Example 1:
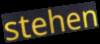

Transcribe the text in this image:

stehen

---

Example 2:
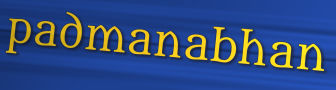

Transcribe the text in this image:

padmanabhan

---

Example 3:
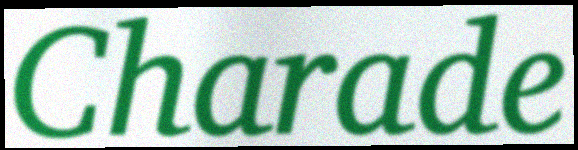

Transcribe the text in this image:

Charade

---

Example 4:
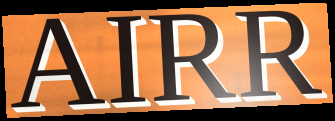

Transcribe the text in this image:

AIRR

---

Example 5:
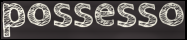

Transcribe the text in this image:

possesso